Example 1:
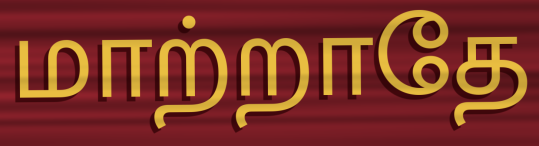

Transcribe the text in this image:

மாற்றாதே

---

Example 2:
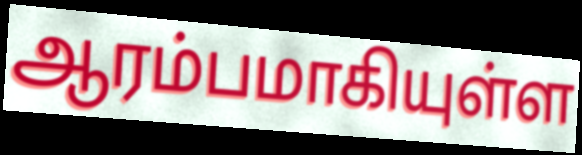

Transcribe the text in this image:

ஆரம்பமாகியுள்ள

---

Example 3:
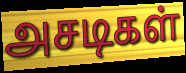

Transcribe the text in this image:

அசடிகள்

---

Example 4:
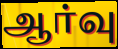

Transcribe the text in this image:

ஆர்வு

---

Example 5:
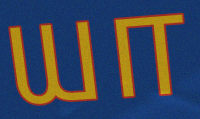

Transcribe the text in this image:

யா